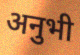
अनुभी